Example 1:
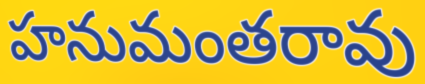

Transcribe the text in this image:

హనుమంతరావు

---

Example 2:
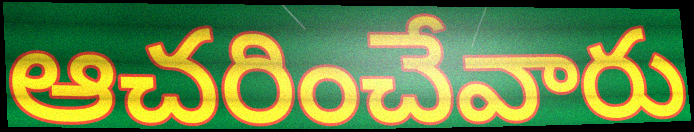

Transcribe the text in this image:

ఆచరించేవారు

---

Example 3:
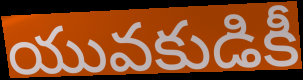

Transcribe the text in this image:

యువకుడికీ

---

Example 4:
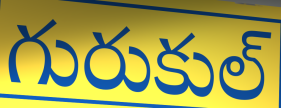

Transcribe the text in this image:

గురుకుల్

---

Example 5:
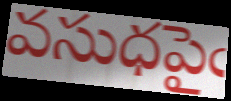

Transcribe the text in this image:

వసుధపైఁ